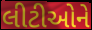
લીટીઓને